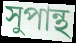
সুপান্থ